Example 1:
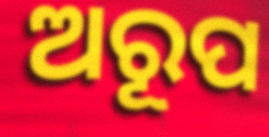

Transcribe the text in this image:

ଅରୂପ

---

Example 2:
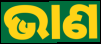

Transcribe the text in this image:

ଭାଣ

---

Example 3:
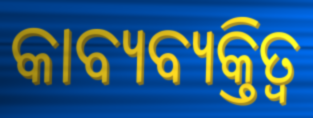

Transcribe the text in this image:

କାବ୍ୟବ୍ୟକ୍ତିତ୍ୱ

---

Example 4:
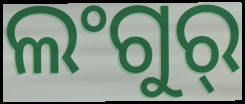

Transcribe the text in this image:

ଲଂଗୁର୍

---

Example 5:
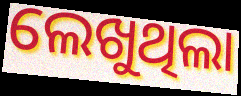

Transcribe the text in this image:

ଲେଖୁଥିଲା